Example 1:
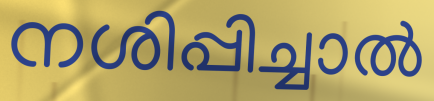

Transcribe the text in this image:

നശിപ്പിച്ചാൽ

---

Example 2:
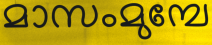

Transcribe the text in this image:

മാസംമുമ്പേ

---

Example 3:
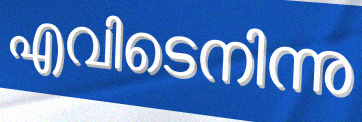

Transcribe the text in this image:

എവിടെനിന്നു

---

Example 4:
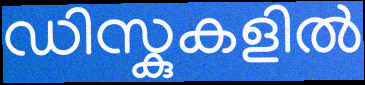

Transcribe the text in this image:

ഡിസ്കുകളിൽ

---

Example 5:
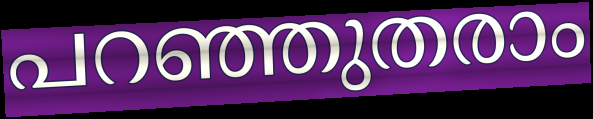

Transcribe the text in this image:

പറഞ്ഞുതരാം